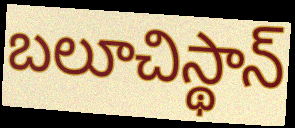
బలూచిస్థాన్